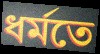
ধর্মতে